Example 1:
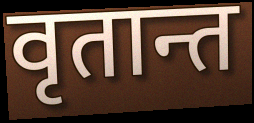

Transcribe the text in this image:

वृतान्त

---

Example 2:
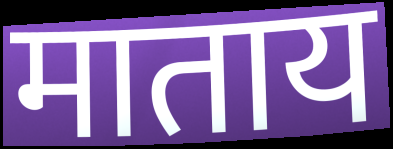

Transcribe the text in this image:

माताय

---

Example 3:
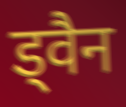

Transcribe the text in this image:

ड्वैन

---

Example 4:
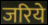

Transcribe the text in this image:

जरिये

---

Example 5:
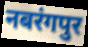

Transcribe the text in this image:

नबरंगपुर